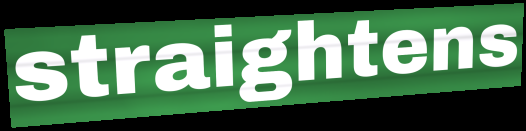
straightens